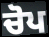
ਚੋਪ